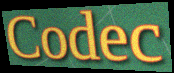
Codec